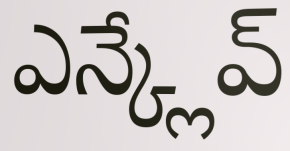
ఎన్క్లేవ్